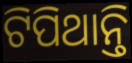
ଟିପିଥାନ୍ତି